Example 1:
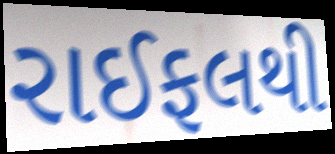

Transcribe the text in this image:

રાઈફલથી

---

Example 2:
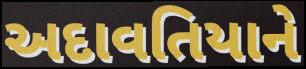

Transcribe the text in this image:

અદાવતિયાને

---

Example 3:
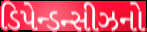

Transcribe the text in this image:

ડિપેન્ડન્સીઝનો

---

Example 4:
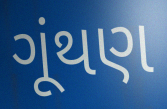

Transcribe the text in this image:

ગૂંથણ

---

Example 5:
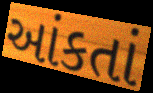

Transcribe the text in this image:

આંકતાં